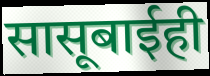
सासूबाईही